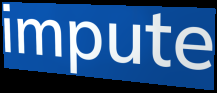
impute